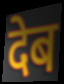
देब